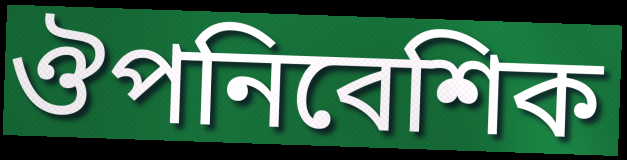
ঔপনিবেশিক